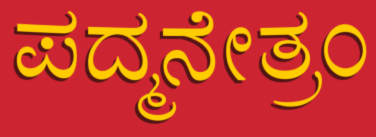
ಪದ್ಮನೇತ್ರಂ